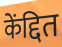
केंद्दित